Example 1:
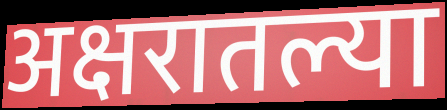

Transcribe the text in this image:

अक्षरातल्या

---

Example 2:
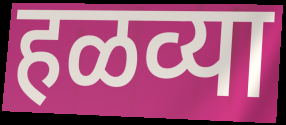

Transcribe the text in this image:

हळव्या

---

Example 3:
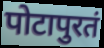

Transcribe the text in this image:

पोटापुरतं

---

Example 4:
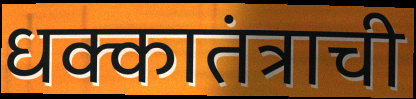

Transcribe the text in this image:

धक्कातंत्राची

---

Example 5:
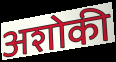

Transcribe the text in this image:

अशोकी